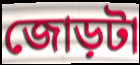
জোড়টা